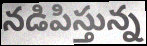
నడిపిస్తున్న